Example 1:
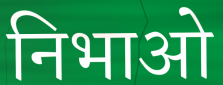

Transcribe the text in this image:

निभाओ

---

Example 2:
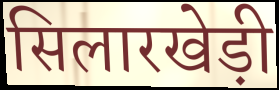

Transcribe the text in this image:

सिलारखेड़ी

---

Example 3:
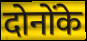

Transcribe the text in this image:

दोनोंके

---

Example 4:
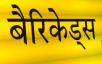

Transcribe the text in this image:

बैरिकेड्स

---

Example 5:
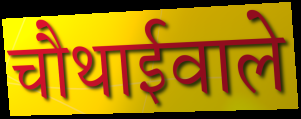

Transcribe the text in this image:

चौथाईवाले